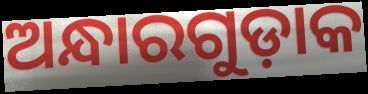
ଅନ୍ଧାରଗୁଡ଼ାକ